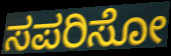
ಸಪರಿಸೋ